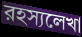
রহস্যলেখা